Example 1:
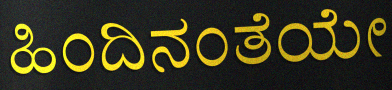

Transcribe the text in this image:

ಹಿಂದಿನಂತೆಯೇ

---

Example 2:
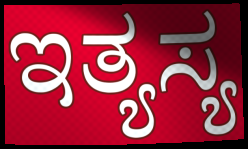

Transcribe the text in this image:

ಇತ್ಯಸ್ಯ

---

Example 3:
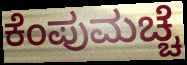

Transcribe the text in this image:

ಕೆಂಪುಮಚ್ಚೆ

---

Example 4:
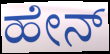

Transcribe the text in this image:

ಹೇನ್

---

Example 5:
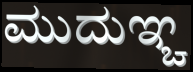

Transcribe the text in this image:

ಮುದುಞ್ಚ